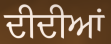
ਦੀਦੀਆਂ